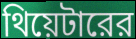
থিয়েটারের